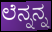
ಲೆನ್ನನ್ನ